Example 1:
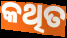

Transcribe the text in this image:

କଥିତ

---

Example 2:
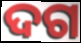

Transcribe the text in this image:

ଦଗ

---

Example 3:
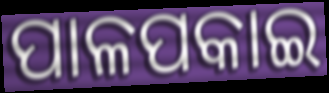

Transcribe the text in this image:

ପାଳପକାଇ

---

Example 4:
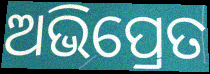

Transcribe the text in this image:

ଅଭିପ୍ରେତ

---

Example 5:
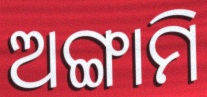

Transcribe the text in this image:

ଅଙ୍ଗାମି